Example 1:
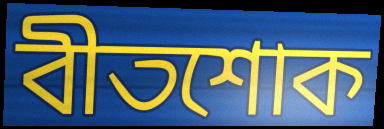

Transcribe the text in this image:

বীতশোক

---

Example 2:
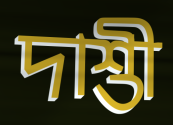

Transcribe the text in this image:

দাশ্তী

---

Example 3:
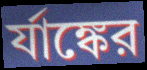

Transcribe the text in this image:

র্যাঙ্কের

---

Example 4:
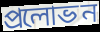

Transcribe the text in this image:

প্রলোভন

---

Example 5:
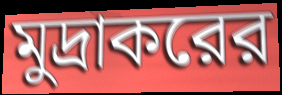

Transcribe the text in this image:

মুদ্রাকরের